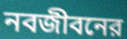
নবজীবনের